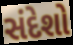
સંદેશો